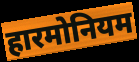
हारमोनियम